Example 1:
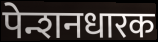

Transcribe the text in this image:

पेन्शनधारक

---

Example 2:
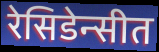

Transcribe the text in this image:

रेसिडेन्सीत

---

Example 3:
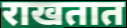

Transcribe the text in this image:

राखतात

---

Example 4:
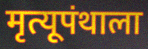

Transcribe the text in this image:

मृत्यूपंथाला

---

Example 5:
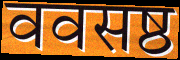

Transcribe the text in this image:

ववसष्ठ